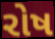
રોષ